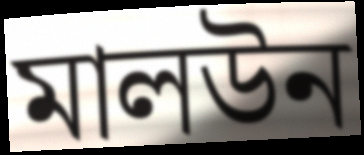
মালউন